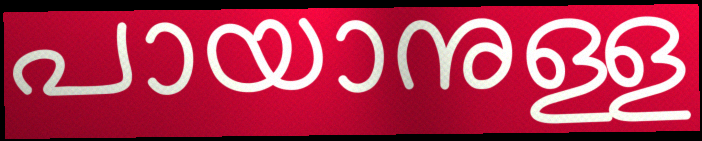
പായാനുള്ള